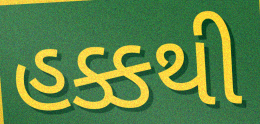
હક્કથી